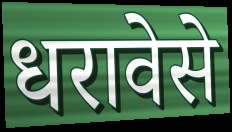
धरावेसे